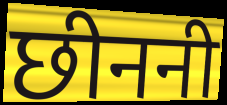
छीननी